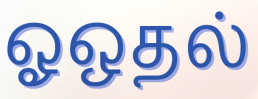
ஓஒதல்